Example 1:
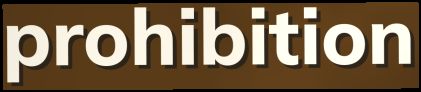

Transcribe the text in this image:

prohibition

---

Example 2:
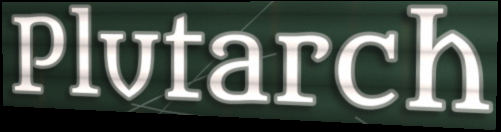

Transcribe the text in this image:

Plutarch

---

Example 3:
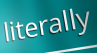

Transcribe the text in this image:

literally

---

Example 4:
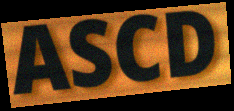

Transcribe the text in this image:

ASCD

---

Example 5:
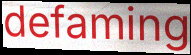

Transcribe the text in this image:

defaming